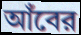
আঁবের